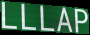
LLLAP